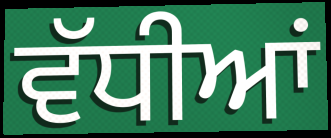
ਵੱਧੀਆਂ